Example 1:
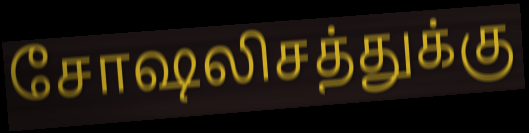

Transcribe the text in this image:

சோஷலிசத்துக்கு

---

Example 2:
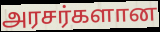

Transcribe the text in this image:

அரசர்களான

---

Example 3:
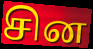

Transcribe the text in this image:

சின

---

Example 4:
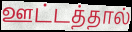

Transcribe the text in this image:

ஊட்டத்தால்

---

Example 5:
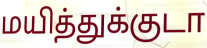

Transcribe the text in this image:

மயித்துக்குடா